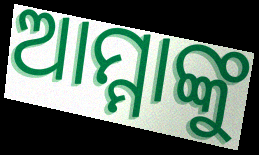
ଆମ୍ମାଙ୍କୁ